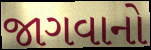
જાગવાનો